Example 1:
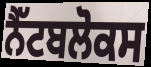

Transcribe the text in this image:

ਨੈੱਟਬਲੋਕਸ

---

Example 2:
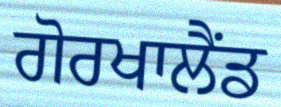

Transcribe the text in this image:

ਗੋਰਖਾਲੈਂਡ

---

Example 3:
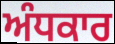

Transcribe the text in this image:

ਅੰਧਕਾਰ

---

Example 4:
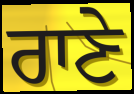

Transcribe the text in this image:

ਰਾਣੇ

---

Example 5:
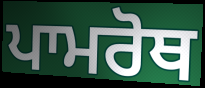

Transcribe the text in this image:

ਪਾਮਰੋਥ